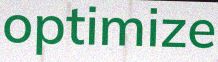
optimize